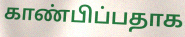
காண்பிப்பதாக